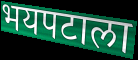
भयपटाला